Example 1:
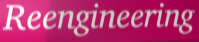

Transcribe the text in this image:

Reengineering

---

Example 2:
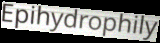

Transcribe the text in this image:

Epihydrophily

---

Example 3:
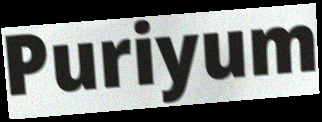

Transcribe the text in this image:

Puriyum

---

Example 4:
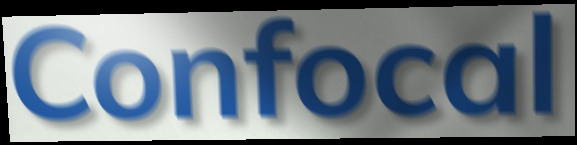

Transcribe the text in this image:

Confocal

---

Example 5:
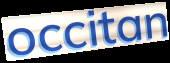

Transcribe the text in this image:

occitan